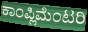
ಕಾಂಪ್ಲಿಮೆಂಟರಿ